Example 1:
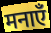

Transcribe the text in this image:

मनाएँ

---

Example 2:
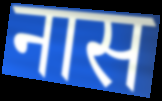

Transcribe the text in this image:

नास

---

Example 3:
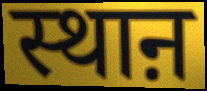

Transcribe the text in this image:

स्थाऩ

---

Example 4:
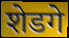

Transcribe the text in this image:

शेडगे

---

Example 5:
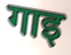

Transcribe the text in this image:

गाइ